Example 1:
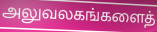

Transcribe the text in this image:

அலுவலகங்களைத்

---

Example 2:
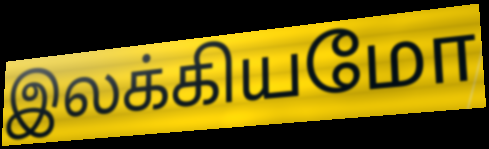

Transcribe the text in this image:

இலக்கியமோ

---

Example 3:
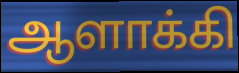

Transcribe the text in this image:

ஆளாக்கி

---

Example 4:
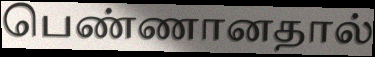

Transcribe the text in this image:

பெண்ணானதால்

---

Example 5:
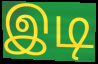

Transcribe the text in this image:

இடி